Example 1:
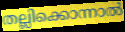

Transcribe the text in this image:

തല്ലിക്കൊന്നാൽ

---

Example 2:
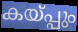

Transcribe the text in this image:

കയ്പ്പും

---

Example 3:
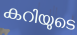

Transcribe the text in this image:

കറിയുടെ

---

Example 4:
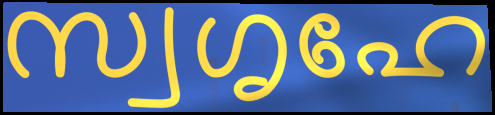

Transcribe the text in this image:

സ്വഗൃഹേ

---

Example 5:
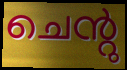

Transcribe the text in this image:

ചെന്റു